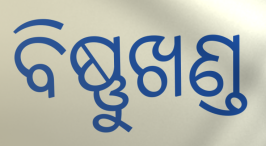
ବିଷ୍ଣୁଖଣ୍ଡ